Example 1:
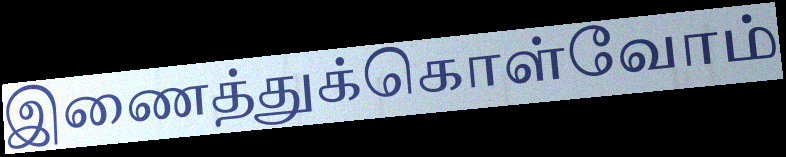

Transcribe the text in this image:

இணைத்துக்கொள்வோம்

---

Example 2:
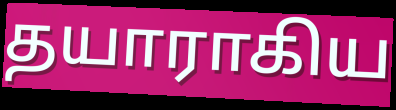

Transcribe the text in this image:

தயாராகிய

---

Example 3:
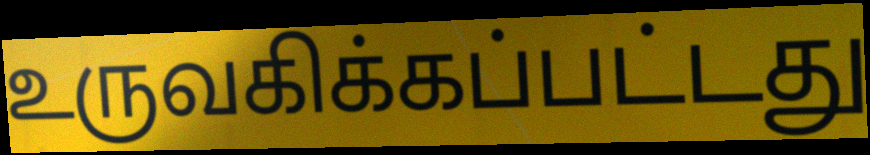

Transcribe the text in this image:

உருவகிக்கப்பட்டது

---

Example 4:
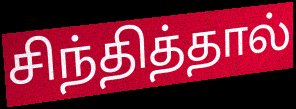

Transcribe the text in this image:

சிந்தித்தால்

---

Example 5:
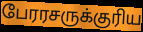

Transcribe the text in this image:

பேரரசருக்குரிய